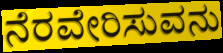
ನೆರವೇರಿಸುವನು